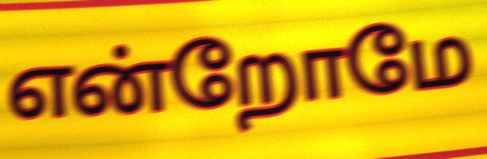
என்றோமே